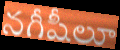
నగీషీలూ